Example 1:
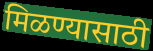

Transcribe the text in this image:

मिळण्‍यासाठी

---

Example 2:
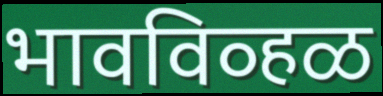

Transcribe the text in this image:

भावविव्हळ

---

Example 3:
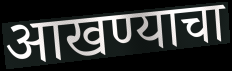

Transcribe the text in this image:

आखण्याचा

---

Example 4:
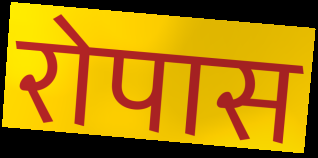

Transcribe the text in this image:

रोपास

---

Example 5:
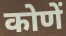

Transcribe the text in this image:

कोणें